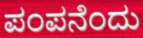
ಪಂಪನೆಂದು